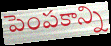
పెంపకాన్ని